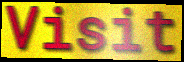
Visit